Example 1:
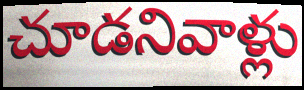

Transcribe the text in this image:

చూడనివాళ్లు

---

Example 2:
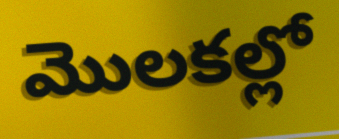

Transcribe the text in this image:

మొలకల్లో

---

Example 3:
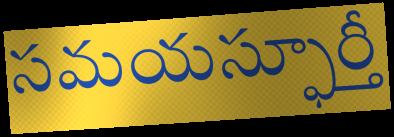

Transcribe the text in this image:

సమయస్ఫూర్తీ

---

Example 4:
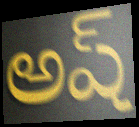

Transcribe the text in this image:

అష్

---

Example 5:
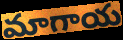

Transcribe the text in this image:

మాగాయ